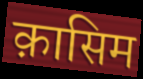
क़ासिम